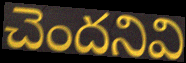
చెందనివి